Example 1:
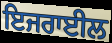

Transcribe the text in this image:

ਇਜਰਾਈਲ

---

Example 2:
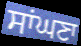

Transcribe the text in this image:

ਸਾਂਘਣਾ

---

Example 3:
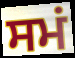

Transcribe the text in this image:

ਸਮਂ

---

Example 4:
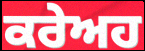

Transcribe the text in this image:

ਕਰੇਅਹ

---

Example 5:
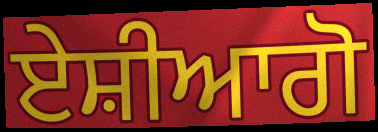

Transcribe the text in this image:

ਏਸ਼ੀਆਗੋ